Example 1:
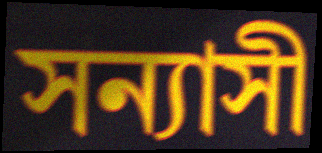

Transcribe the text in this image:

সন্যাসী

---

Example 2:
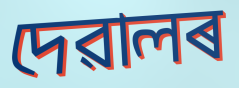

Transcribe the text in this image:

দেৱালৰ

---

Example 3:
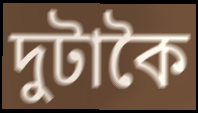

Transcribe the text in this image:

দুটাকৈ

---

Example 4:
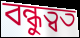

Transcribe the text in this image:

বন্ধুত্বত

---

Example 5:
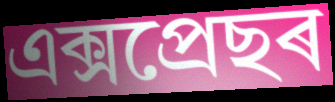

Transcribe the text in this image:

এক্সপ্ৰেছৰ